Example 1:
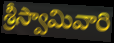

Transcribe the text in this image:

శ్రీస్వామివారి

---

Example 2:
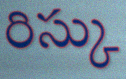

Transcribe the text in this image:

రిస్కు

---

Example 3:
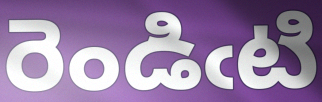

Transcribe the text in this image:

రెండిఁటి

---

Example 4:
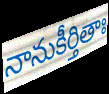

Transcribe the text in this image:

నానుకీర్తితాః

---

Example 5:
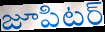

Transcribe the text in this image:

జూపిటర్